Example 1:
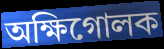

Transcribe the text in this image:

অক্ষিগোলক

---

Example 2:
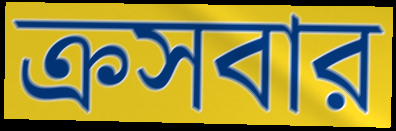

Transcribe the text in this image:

ক্রসবার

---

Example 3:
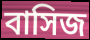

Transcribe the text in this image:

বাসিজ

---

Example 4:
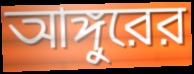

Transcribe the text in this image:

আঙ্গুরের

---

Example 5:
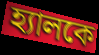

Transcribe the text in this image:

হ্যালকে